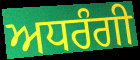
ਅਧਰੰਗੀ